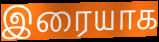
இரையாக